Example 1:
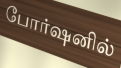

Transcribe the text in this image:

போர்ஷனில்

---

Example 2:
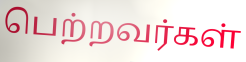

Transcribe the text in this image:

பெற்றவர்கள்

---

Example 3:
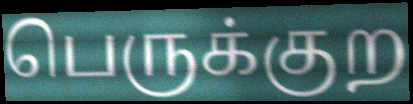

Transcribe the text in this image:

பெருக்குற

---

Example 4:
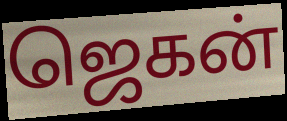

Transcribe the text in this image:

ஜெகன்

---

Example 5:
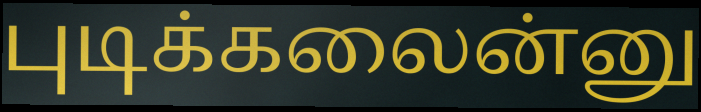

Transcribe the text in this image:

புடிக்கலைன்னு